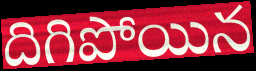
దిగిపోయిన